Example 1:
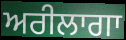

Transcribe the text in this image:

ਅਰੀਲਾਗਾ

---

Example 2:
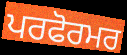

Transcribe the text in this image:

ਪਰਫੋਰਮਰ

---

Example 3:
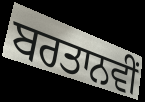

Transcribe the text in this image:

ਬਰਤਾਨਵੀਂ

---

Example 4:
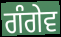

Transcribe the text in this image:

ਗੰਗੇਵ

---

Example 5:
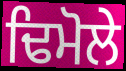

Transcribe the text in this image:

ਢਿਮੋਲੇ